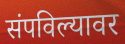
संपविल्यावर